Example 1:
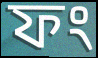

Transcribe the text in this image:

ফং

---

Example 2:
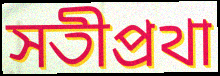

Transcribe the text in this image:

সতীপ্রথা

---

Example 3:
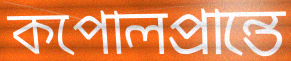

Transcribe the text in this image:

কপোলপ্রান্তে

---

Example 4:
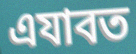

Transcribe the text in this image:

এযাবত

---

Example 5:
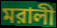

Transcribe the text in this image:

মরালী